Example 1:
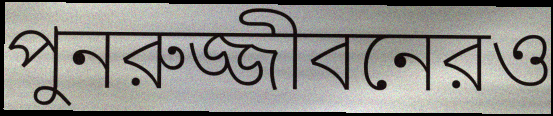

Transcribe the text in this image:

পুনরুজ্জীবনেরও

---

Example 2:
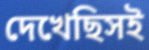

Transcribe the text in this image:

দেখেছিসই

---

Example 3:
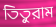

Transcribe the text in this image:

তিতুরাম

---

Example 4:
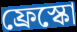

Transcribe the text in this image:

ফ্রেস্কো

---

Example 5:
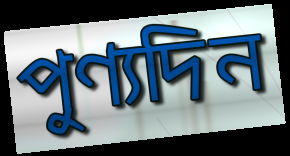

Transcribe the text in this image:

পুণ্যদিন